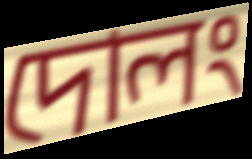
দোলং